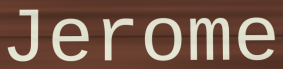
Jerome